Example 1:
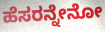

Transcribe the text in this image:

ಹೆಸರನ್ನೇನೋ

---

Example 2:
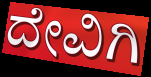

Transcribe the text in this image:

ದೇವಿಗಿ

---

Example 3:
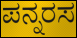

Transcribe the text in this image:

ಪನ್ನರಸ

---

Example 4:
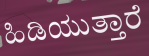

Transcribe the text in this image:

ಹಿಡಿಯುತ್ತಾರೆ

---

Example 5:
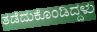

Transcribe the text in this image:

ತಡೆದುಕೊಂಡಿದ್ದಳು